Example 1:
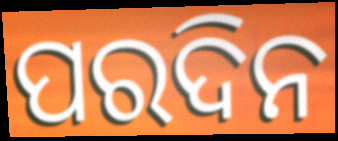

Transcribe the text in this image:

ପରଦିନ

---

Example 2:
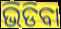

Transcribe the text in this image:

ଭିଡିବା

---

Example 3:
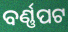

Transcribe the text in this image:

ବର୍ଣ୍ଣପଟ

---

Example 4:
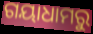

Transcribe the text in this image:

ଗୟାଧାମରୁ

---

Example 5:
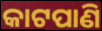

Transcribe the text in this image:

କାଟପାଣି